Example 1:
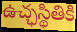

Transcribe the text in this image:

ఉచ్ఛస్థితికి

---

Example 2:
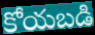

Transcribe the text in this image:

కోయబడి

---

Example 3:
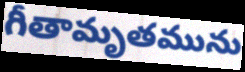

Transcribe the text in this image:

గీతామృతమును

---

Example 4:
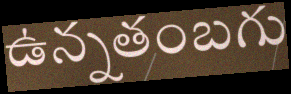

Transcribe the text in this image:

ఉన్నతంబగు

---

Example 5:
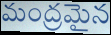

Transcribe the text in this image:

మంద్రమైన